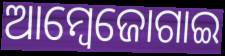
ଆମ୍ବେଜୋଗାଇ